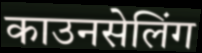
काउनसेलिंग